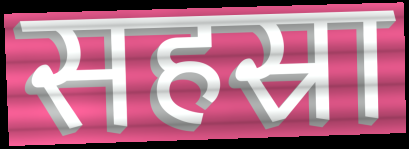
सहस्रा